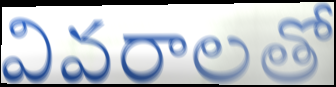
వివరాలతో